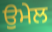
ਉਮੇਲ